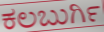
ಕಲಬುರ್ಗಿ